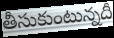
తీసుకుంటున్నదీ